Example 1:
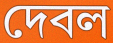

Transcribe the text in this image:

দেবল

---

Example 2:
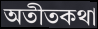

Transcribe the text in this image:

অতীতকথা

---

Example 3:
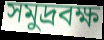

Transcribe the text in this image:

সমুদ্রবক্ষ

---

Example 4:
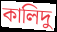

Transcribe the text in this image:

কালিদু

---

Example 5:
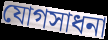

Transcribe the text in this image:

যোগসাধনা